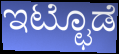
ಇಟ್ಟೊಡೆ